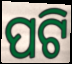
ପଟି